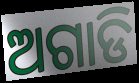
ଅଗାଡି